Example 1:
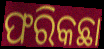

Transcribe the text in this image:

ଫରିକଛା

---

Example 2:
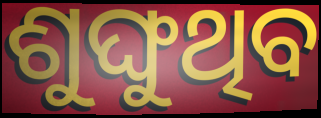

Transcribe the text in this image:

ଶୁଙ୍ଘୁଥିବ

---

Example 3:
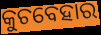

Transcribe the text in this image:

କୁଚବେହାର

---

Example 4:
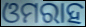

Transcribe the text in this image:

ଓମରାହ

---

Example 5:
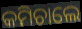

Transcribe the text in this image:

କମିଚାଲେ